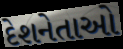
દેશનેતાઓ